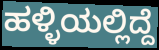
ಹಳ್ಳಿಯಲ್ಲಿದ್ದೆ